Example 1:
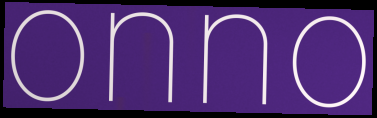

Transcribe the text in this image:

onno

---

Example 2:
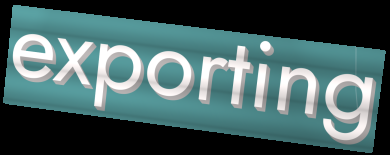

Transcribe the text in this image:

exporting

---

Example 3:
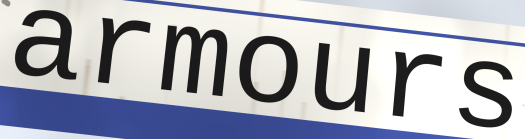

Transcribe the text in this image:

armours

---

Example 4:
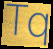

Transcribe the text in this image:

Tq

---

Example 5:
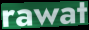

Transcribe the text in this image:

rawat